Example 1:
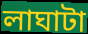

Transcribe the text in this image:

লাঘাটা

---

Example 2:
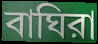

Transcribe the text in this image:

বাঘিরা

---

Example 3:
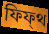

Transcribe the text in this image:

ফিফ্থ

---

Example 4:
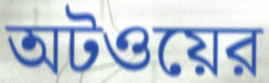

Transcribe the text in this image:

অটওয়ের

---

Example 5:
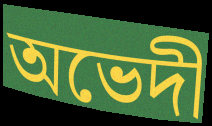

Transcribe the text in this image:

অভেদী